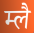
म्लै